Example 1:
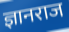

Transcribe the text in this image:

ज्ञानराज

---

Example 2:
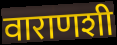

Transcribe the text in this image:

वाराणशी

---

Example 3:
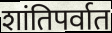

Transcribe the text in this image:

शांतिपर्वात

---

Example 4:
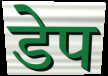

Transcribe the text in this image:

डेप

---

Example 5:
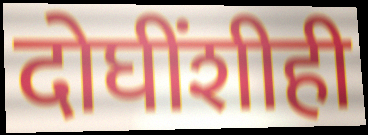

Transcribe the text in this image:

दोघींशीही